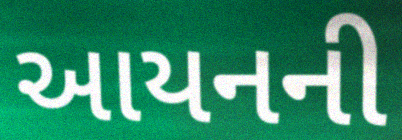
આયનની